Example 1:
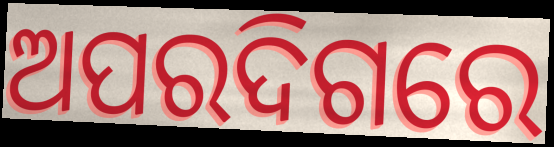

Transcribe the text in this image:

ଅପରଦିଗରେ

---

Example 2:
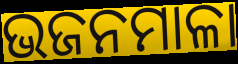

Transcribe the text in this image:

ଭଜନମାଳା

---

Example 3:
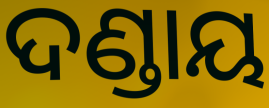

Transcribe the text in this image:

ଦଣ୍ଡାୟ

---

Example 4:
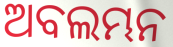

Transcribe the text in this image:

ଅବଲମ୍ଭନ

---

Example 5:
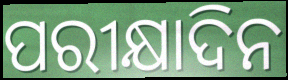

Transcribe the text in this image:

ପରୀକ୍ଷାଦିନ